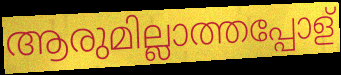
ആരുമില്ലാത്തപ്പോള്